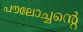
പൗലോച്ചന്റെ